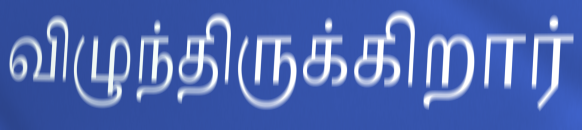
விழுந்திருக்கிறார்